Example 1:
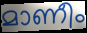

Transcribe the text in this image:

മാണീം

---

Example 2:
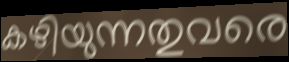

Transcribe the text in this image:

കഴിയുന്നതുവരെ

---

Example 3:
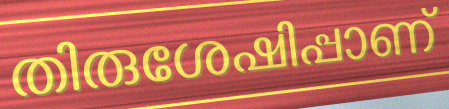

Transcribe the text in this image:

തിരുശേഷിപ്പാണ്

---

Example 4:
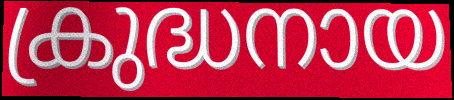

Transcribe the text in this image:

ക്രുദ്ധനായ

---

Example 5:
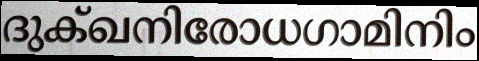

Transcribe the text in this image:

ദുക്ഖനിരോധഗാമിനിം